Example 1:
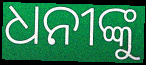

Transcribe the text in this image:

ଧନୀଙ୍କୁ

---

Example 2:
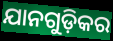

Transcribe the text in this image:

ଯାନଗୁଡ଼ିକର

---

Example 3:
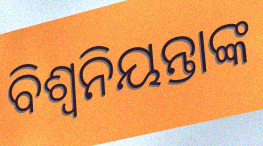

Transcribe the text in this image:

ବିଶ୍ବନିୟନ୍ତାଙ୍କ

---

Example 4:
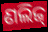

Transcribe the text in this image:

ଣଲିଜ୍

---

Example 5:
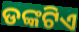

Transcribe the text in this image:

ଡଙ୍କଟିଏ